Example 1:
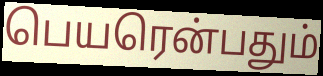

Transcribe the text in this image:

பெயரென்பதும்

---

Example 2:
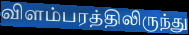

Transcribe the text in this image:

விளம்பரத்திலிருந்து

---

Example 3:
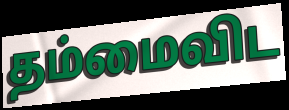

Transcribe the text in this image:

தம்மைவிட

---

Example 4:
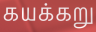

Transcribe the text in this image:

கயக்கறு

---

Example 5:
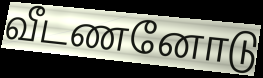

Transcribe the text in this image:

வீடணனோடு